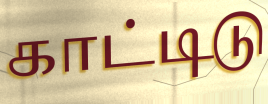
காட்டிடு